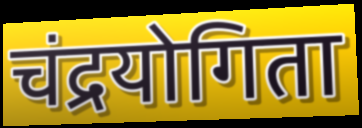
चंद्रयोगिता